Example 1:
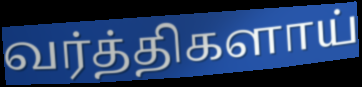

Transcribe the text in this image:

வர்த்திகளாய்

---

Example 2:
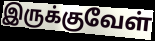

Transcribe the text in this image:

இருக்குவேள்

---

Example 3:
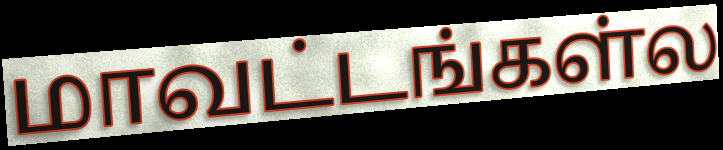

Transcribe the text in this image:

மாவட்டங்கள்ல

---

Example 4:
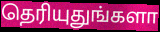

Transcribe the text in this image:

தெரியுதுங்களா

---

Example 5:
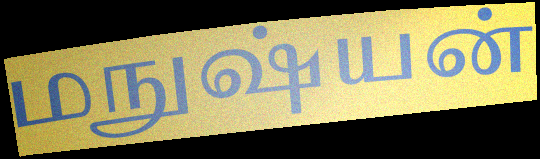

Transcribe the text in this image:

மநுஷ்யன்